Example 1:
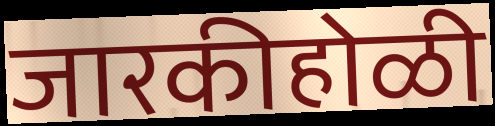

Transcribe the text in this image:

जारकीहोळी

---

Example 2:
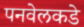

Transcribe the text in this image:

पनवेलकडे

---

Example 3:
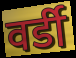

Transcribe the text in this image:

वर्डी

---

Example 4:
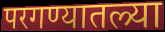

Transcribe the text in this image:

परगण्यातल्या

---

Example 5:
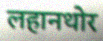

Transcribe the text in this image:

लहानथोर